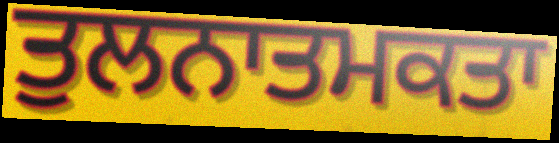
ਤੁਲਨਾਤਮਕਤਾ